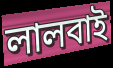
লালবাই